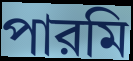
পারমি